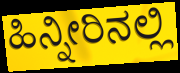
ಹಿನ್ನೀರಿನಲ್ಲಿ